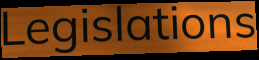
Legislations